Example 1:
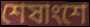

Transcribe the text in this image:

শেষাংশে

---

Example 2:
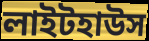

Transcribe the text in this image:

লাইটহাউস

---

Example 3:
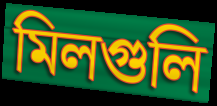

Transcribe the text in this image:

মিলগুলি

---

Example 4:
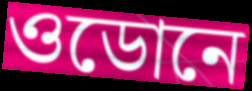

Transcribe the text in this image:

ওডোনে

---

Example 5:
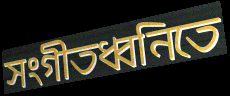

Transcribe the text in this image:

সংগীতধ্বনিতে